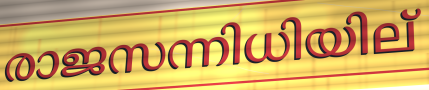
രാജസന്നിധിയില്